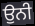
ਉਨੀ